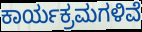
ಕಾರ್ಯಕ್ರಮಗಳಿವೆ